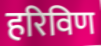
हरिविण